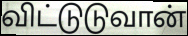
விட்டுடுவான்